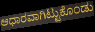
ಆಧಾರವಾಗಿಟ್ಟುಕೊಂಡು